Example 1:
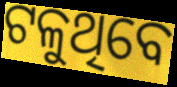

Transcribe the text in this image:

ଟଳୁଥିବେ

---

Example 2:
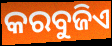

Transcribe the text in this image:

କରବୁଜିଏ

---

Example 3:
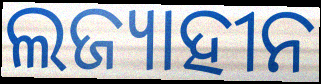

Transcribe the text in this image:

ଲଜ୍ଯାହୀନ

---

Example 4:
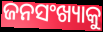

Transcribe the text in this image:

ଜନସଂଖ୍ୟାକୁ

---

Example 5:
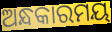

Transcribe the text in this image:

ଅନ୍ଧକାରମୟ